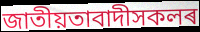
জাতীয়তাবাদীসকলৰ